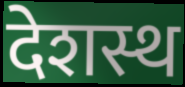
देशस्थ